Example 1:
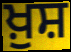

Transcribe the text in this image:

ਖ਼ੁਸ਼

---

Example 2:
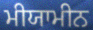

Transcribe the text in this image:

ਮੀਯਾਮੀਨ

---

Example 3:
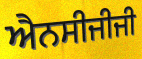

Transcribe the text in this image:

ਐਨਸੀਜੀਜੀ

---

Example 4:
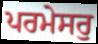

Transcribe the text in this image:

ਪਰਮੇਸਰੁ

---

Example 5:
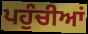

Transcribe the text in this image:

ਪਹੁੰਚੀਆਂ